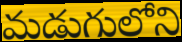
మడుగులోని